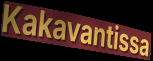
Kakavantissa